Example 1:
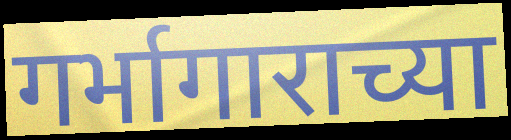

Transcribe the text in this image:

गर्भागाराच्या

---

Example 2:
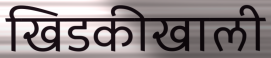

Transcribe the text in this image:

खिडकीखाली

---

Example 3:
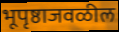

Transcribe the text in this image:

भूपृष्ठाजवळील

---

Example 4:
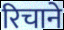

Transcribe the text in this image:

रिचाने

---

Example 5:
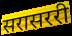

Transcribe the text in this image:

सरासररी